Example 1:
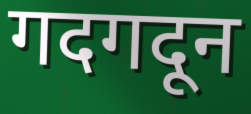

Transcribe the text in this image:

गदगदून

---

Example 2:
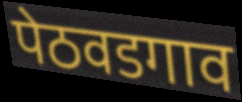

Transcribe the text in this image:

पेठवडगाव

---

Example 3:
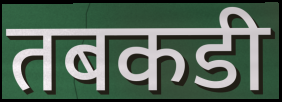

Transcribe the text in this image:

तबकडी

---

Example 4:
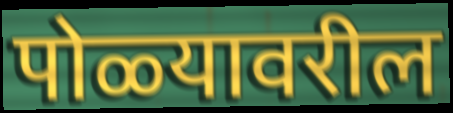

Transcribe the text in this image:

पोळ्यावरील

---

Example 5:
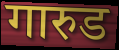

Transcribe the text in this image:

गारुड